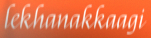
lekhanakkaagi